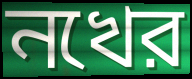
নখের